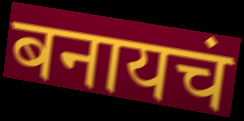
बनायचं